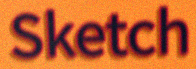
Sketch